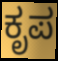
ಕೃಪ